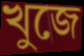
খুজে